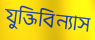
যুক্তিবিন্যাস